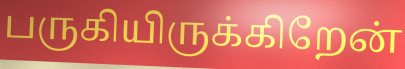
பருகியிருக்கிறேன்